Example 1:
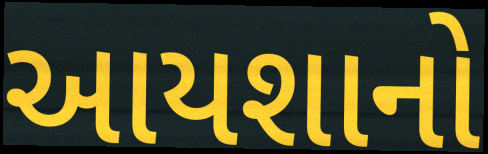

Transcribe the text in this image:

આયશાનો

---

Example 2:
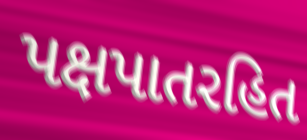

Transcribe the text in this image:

પક્ષપાતરહિત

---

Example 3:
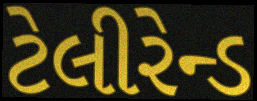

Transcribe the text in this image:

ટેલીરેન્ડ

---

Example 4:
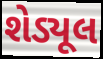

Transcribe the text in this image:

શેડ્યૂલ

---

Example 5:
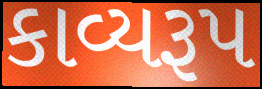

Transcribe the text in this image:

કાવ્યરૂપ